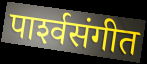
पार्श्‍वसंगीत